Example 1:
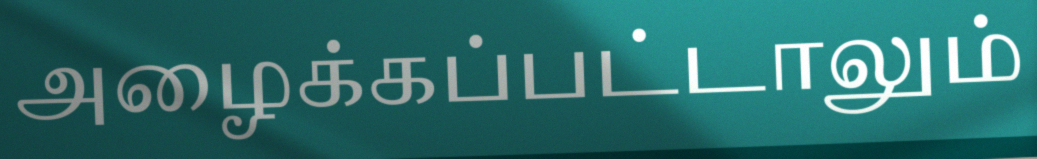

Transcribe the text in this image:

அழைக்கப்பட்டாலும்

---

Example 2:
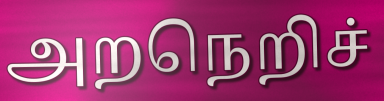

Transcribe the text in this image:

அறநெறிச்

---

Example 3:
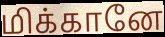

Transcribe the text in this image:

மிக்கானே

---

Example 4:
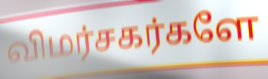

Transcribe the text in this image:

விமர்சகர்களே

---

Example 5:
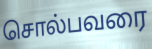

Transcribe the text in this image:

சொல்பவரை